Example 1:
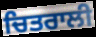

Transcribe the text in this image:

ਚਿਤਰਾਲੀ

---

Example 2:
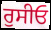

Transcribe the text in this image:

ਰੁਸੀਓ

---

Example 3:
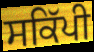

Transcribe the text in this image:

ਸਕਿੱਪੀ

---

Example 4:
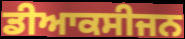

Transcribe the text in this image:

ਡੀਆਕਸੀਜਨ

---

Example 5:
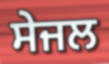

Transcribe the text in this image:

ਸੇਜਲ